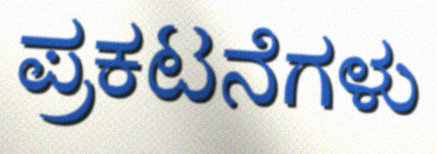
ಪ್ರಕಟನೆಗಳು